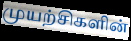
முயற்சிகளின்